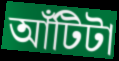
আঁটিটা